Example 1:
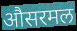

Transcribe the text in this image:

औसरमल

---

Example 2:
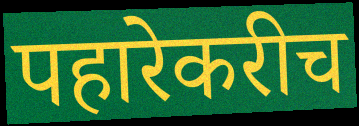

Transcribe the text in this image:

पहारेकरीच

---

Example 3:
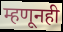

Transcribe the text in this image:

म्हणूनही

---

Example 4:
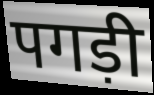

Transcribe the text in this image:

पगड़ी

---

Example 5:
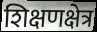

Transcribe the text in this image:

शिक्षणक्षेत्र